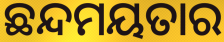
ଛନ୍ଦମୟତାର